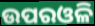
ଉପରଓଳି